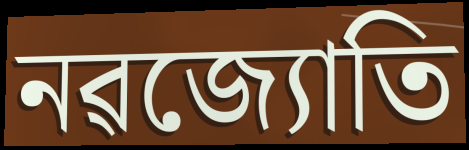
নৱজ্যোতি